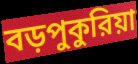
বড়পুকুরিয়া